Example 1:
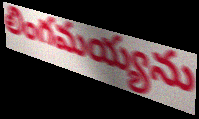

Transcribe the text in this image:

లింగమయ్యను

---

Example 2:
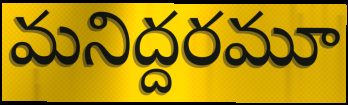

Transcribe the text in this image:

మనిద్దరమూ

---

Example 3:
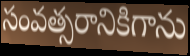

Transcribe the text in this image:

సంవత్సరానికిగాను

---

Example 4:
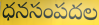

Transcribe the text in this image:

ధనసంపదల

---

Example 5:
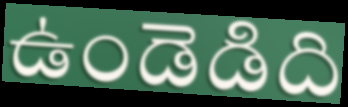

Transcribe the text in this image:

ఉండెడిది